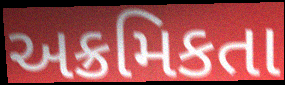
અક્રમિકતા